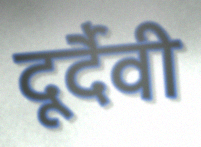
दूर्दैवी